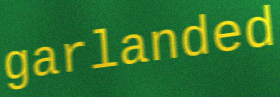
garlanded